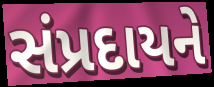
સંપ્રદાયને